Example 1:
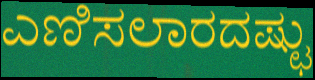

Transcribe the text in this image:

ಎಣಿಸಲಾರದಷ್ಟು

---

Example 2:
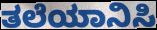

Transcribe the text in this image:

ತಲೆಯಾನಿಸಿ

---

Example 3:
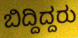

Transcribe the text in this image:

ಬಿದ್ದಿದ್ದರು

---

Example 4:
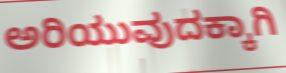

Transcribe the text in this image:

ಅರಿಯುವುದಕ್ಕಾಗಿ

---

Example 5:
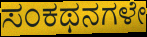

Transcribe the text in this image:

ಸಂಕಥನಗಳೇ